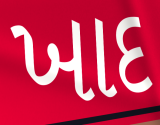
ખાદ